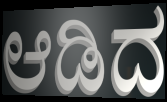
ಆಡಿದ